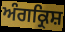
ਅੰਗਕ੍ਰਿਸ਼